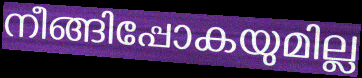
നീങ്ങിപ്പോകയുമില്ല